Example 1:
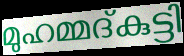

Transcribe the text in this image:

മുഹമ്മദ്കുട്ടി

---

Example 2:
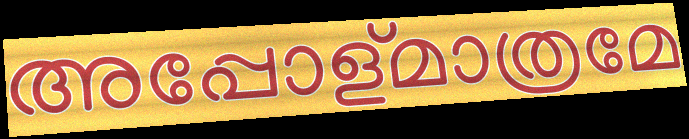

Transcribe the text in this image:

അപ്പോള്മാത്രമേ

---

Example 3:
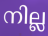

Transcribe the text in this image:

നില്ല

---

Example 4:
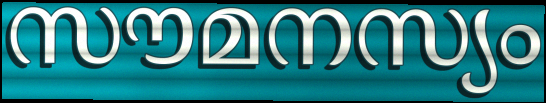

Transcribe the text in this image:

സൗമനസ്യം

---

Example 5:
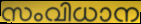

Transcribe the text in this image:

സംവിധാന